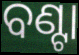
ବଣ୍ଟା